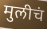
मुलीचं